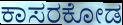
ಕಾಸರಕೋಡ